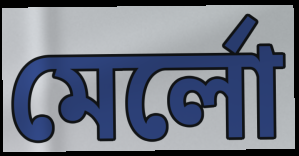
মের্লো